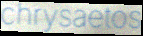
chrysaetos